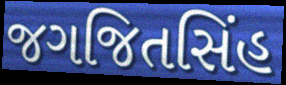
જગજિતસિંહ